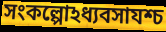
সংকল্পোঽধ্যবসাযশ্চ